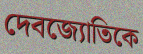
দেবজ্যোতিকে